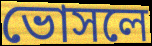
ভোসলে